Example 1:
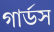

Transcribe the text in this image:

গার্ডস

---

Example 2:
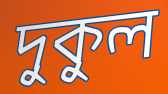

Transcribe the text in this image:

দুকুল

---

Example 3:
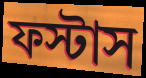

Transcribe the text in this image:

ফস্টাস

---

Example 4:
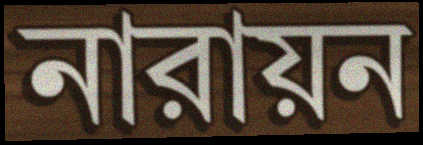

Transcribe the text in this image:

নারায়ন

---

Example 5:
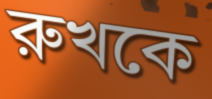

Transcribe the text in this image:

রুখকে